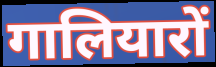
गालियारों